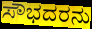
ಸೌಭದರನು